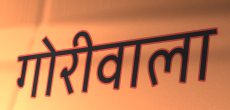
गोरीवाला